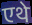
एथे